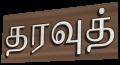
தரவுத்